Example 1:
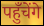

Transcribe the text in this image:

पहुँचेंगे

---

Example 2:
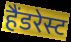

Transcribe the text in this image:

हैंडरेस्ट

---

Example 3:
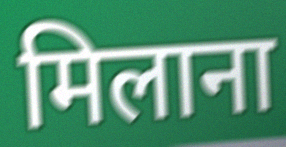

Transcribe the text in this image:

मिलाना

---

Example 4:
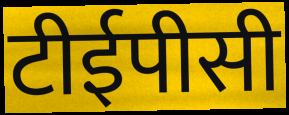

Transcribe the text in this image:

टीईपीसी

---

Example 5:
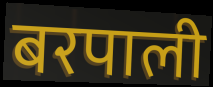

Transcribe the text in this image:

बरपाली